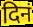
दिनं